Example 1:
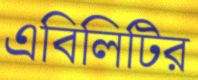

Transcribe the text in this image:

এবিলিটির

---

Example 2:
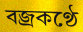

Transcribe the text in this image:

বজ্রকণ্ঠে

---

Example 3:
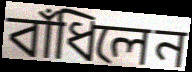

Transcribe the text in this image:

বাঁধিলেন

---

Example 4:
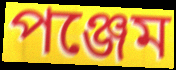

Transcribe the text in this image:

পঞ্জেম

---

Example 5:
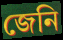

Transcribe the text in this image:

জেনি